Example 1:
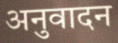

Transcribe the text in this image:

अनुवादन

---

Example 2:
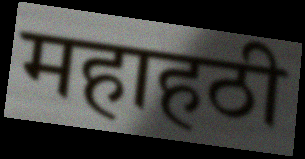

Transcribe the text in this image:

महाहठी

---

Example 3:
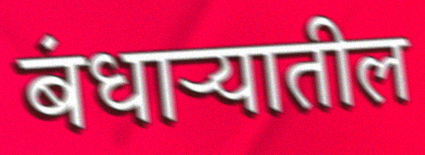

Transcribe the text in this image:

बंधाऱ्यातील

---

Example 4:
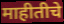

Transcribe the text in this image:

माहीतीचे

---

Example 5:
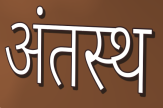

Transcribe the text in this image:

अंतस्थ